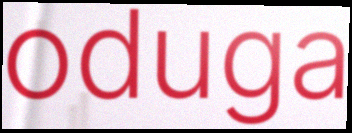
oduga